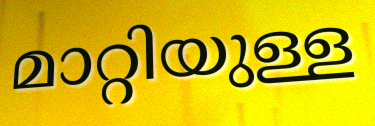
മാറ്റിയുള്ള